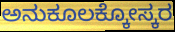
ಅನುಕೂಲಕ್ಕೋಸ್ಕರ